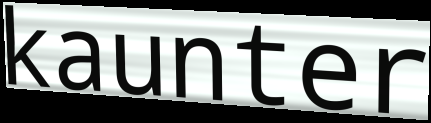
kaunter